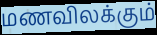
மணவிலக்கும்